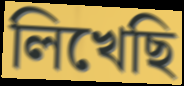
লিখেছি